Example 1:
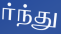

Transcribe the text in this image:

ர்ந்து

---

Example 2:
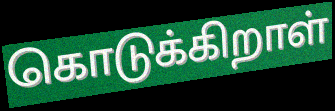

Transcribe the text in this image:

கொடுக்கிறாள்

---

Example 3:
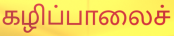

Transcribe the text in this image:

கழிப்பாலைச்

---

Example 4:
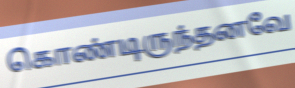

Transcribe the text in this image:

கொண்டிருந்தனவே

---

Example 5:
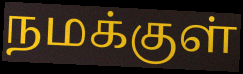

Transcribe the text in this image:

நமக்குள்